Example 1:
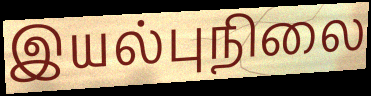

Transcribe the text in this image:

இயல்புநிலை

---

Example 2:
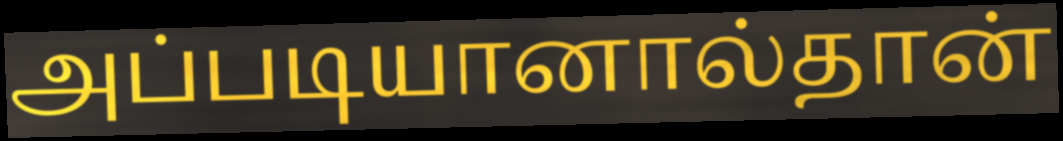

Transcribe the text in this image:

அப்படியானால்தான்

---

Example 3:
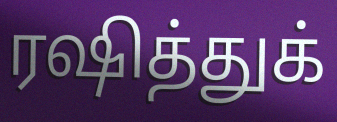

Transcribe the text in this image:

ரஷித்துக்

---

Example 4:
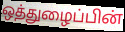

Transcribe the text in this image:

ஒத்துழைப்பின்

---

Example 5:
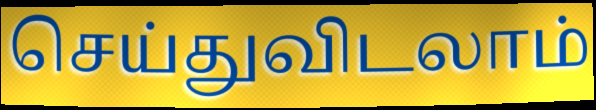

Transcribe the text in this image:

செய்துவிடலாம்